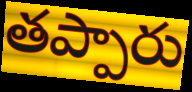
తప్పారు